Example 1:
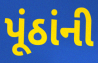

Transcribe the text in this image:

પૂંઠાંની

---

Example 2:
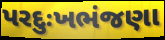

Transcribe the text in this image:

પરદુઃખભંજણા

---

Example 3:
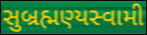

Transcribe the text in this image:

સુબ્રહ્મણ્યસ્વામી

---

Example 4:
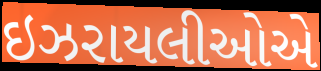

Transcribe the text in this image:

ઇઝરાયલીઓએ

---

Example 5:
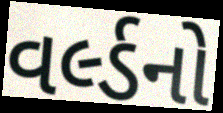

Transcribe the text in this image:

વર્લ્ડનો